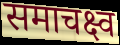
समाचक्ष्व